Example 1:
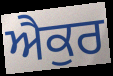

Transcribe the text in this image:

ਐਕੁਰ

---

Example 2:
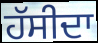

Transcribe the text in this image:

ਹੱਸੀਦਾ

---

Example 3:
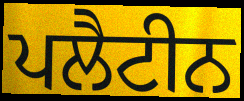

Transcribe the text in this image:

ਪਲੈਟੀਨ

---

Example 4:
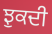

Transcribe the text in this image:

ਝੁਕਦੀ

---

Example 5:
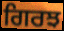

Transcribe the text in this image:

ਗਿਰਝ